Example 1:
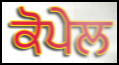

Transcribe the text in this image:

ਕੋਪੇਲ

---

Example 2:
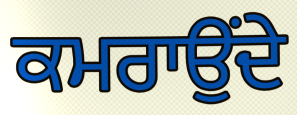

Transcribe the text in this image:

ਕਮਰਾਉਂਦੇ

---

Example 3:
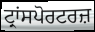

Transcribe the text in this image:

ਟ੍ਰਾਂਸਪੋਰਟਰਜ਼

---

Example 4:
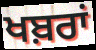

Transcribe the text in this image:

ਖਬ਼ਰਾਂ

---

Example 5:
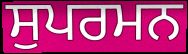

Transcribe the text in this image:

ਸੁਪਰਮਨ